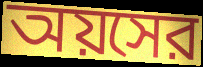
অয়সের